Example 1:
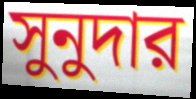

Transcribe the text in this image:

সুনুদার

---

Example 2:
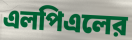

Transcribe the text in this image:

এলপিএলের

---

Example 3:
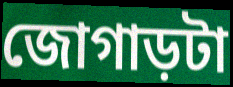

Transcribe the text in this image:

জোগাড়টা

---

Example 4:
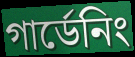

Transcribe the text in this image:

গার্ডেনিং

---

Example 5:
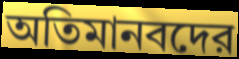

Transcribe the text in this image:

অতিমানবদের